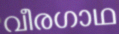
വീരഗാഥ